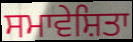
ਸਮਾਵੇਸ਼ਿਤਾ